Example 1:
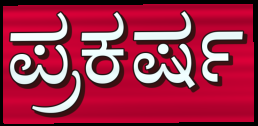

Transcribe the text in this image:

ಪ್ರಕರ್ಷ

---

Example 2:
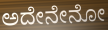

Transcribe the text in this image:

ಅದೇನೇನೋ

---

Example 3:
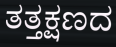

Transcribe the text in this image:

ತತ್ತಕ್ಷಣದ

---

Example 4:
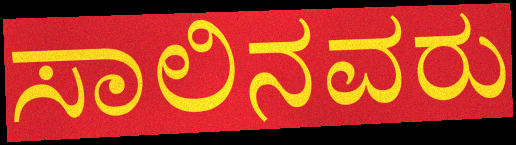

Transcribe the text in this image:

ಸಾಲಿನವರು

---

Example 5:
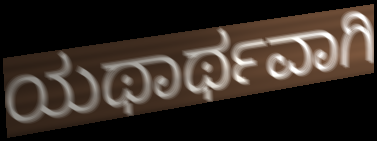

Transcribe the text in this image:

ಯಥಾರ್ಥವಾಗಿ